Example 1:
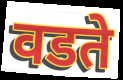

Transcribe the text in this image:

वडते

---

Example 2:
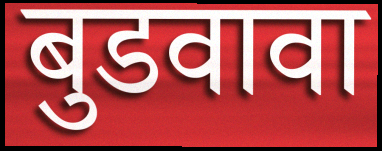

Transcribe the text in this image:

बुडवावा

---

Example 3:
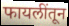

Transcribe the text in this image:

फायलींतून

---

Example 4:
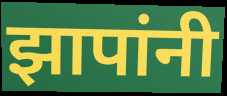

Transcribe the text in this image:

झापांनी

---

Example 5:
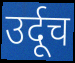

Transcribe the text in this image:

उर्दूच